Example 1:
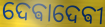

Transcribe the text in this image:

ଦେଵାଦେଵୀ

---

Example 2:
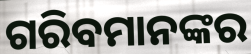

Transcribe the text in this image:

ଗରିବମାନଙ୍କର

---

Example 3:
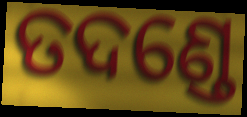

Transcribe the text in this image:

ତଦଣ୍ଡେ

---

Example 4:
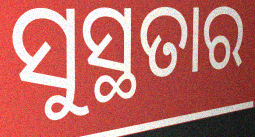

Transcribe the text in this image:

ସୁସ୍ଥତାର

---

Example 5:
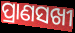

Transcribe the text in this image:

ପ୍ରାଣସଖୀ